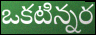
ఒకటిన్నర